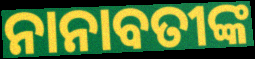
ନାନାବତୀଙ୍କ